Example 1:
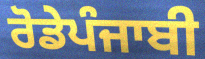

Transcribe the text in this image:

ਰੋਡੇਪੰਜਾਬੀ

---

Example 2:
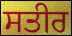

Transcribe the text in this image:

ਸਤੀਰ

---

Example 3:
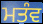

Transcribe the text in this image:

ਮਤੰਵ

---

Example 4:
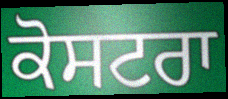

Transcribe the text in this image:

ਕੋਸਟਰਾ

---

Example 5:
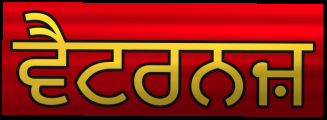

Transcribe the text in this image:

ਵੈਟਰਨਜ਼